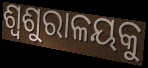
ଶ୍ୱଶୁରାଳୟକୁ